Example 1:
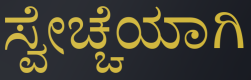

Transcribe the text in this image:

ಸ್ವೇಚ್ಚೆಯಾಗಿ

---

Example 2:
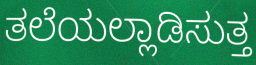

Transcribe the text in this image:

ತಲೆಯಲ್ಲಾಡಿಸುತ್ತ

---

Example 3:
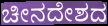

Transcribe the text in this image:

ಚೀನದೇಶದ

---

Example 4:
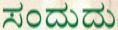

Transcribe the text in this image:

ಸಂದುದು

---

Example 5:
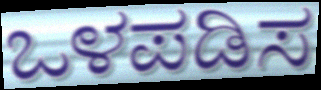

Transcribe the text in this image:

ಒಳಪಡಿಸ